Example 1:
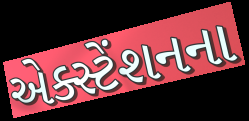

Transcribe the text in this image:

એક્સ્ટેંશનના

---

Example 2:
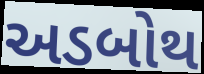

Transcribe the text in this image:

અડબોથ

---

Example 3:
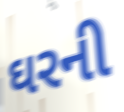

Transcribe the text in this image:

ઘરની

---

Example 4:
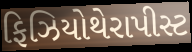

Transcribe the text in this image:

ફિઝિયોથેરાપીસ્ટ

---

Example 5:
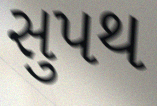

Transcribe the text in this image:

સુપથ